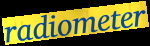
radiometer